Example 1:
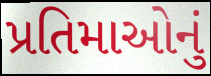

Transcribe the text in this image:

પ્રતિમાઓનું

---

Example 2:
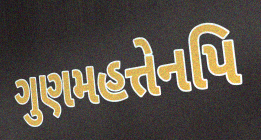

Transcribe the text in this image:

ગુણમહત્તેનપિ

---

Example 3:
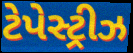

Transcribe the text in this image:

ટેપેસ્ટ્રીઝ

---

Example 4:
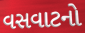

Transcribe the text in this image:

વસવાટનો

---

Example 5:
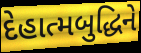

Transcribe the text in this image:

દેહાત્મબુદ્ધિને